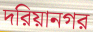
দরিয়ানগর